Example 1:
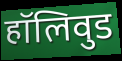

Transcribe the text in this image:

हॉलिवुड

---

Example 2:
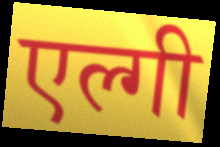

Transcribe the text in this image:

एल्गी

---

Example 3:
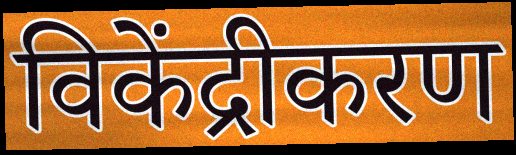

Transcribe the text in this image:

विकेंद्रीकरण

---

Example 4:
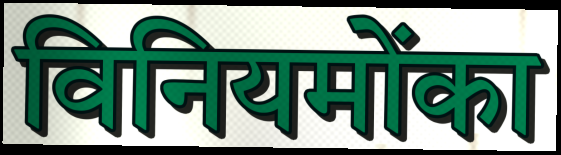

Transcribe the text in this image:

विनियमोंका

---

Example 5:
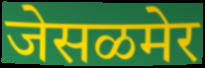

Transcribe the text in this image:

जेसळमेर